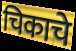
चिकाचे